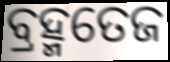
ବ୍ରହ୍ମତେଜ